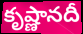
కృష్ణానదీ